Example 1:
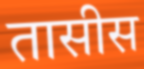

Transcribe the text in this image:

तासीस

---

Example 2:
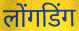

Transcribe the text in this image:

लोंगडिंग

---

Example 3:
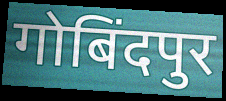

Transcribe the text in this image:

गोबिंदपुर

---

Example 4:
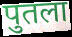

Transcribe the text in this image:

पुतला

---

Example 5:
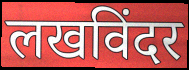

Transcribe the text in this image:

लखविंदर